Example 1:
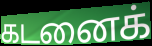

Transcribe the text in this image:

கடனைக்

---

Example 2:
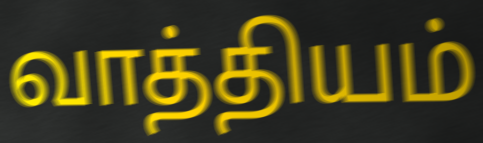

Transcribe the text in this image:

வாத்தியம்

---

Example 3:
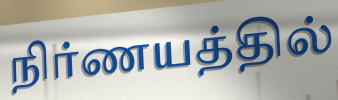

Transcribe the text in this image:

நிர்ணயத்தில்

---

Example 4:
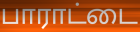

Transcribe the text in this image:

பாராட்டை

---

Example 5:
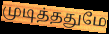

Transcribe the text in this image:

முடித்ததுமே